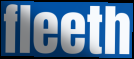
fleeth